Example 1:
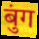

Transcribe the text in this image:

बुंग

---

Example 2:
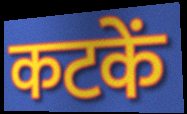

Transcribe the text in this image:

कटकें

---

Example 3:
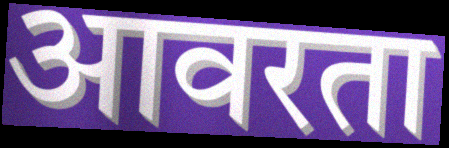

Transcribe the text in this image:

आवरता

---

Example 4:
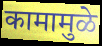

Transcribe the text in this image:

कामामुळे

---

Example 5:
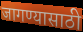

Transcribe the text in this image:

जागण्यासाठी